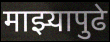
माझ्यापुढे